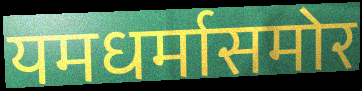
यमधर्मासमोर